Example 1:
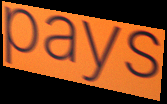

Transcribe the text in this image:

pays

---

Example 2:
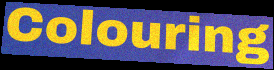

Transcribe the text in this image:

Colouring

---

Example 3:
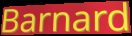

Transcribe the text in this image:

Barnard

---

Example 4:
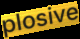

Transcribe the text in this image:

plosive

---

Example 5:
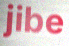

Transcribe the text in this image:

jibe